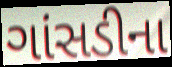
ગાંસડીના